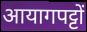
आयागपट्टों